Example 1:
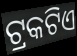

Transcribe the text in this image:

ଟ୍ରକଟିଏ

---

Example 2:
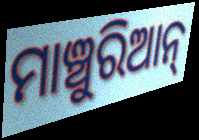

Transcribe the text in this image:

ମାଞ୍ଚୁରିଆନ୍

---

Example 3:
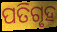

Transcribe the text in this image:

ପତିଗୃହ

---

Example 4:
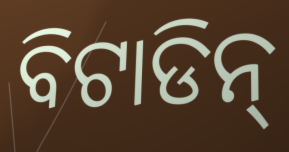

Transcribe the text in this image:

ବିଟାଡିନ୍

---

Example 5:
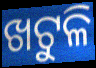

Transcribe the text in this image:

ଖଟୁଳି